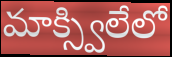
మాక్స్విలేలో